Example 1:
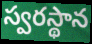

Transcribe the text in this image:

స్వరస్థాన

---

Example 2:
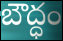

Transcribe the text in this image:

బౌద్ధం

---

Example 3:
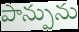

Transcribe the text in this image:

పాన్పును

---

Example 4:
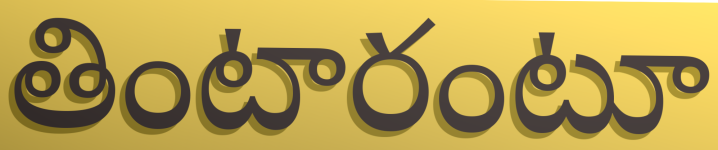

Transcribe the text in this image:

తింటారంటూ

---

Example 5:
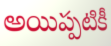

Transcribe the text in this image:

అయిప్పటికీ